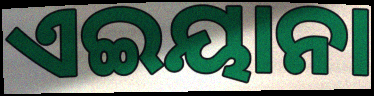
ଏଇୟାନା